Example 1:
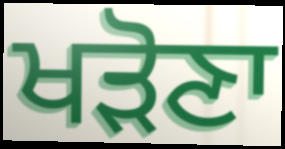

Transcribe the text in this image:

ਖੜੋਣਾ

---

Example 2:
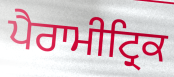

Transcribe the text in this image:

ਪੈਰਾਮੀਟ੍ਰਿਕ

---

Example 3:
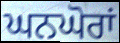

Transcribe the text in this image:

ਘਨਘੋਰਾਂ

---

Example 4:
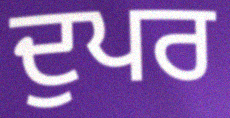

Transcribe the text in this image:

ਦੁਪਰ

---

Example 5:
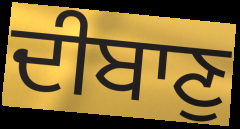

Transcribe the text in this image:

ਦੀਬਾਣੁ